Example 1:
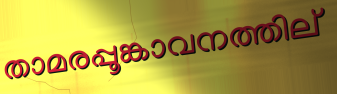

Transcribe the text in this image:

താമരപ്പൂങ്കാവനത്തില്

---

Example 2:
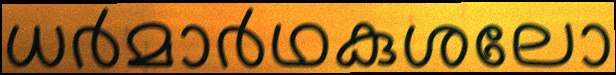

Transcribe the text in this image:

ധർമാർഥകുശലോ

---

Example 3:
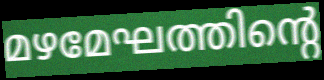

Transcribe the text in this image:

മഴമേഘത്തിന്റെ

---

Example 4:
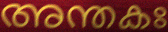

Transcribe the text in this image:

അന്തകഃ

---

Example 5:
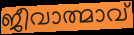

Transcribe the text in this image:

ജീവാത്മാവ്